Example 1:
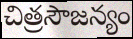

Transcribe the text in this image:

చిత్రసౌజన్యం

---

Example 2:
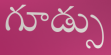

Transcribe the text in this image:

గూడ్సు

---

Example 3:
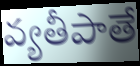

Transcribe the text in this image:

వ్యతీపాతే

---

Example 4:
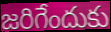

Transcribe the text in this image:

జరిగేందుకు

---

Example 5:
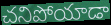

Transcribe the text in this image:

చనిపోయాడా